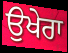
ਉਖੇਰਾ